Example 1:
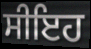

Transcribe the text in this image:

ਸੀਇਹ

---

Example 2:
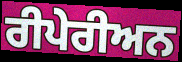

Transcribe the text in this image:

ਰੀਪੇਰੀਅਨ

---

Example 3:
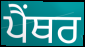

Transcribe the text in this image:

ਪੈੰਥਰ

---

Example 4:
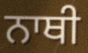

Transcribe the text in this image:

ਨਾਥੀ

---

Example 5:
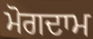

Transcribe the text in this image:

ਮੋਗਦਾਮ